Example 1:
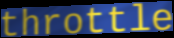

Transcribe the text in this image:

throttle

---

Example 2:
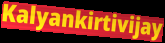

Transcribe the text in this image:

Kalyankirtivijay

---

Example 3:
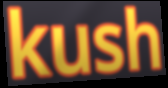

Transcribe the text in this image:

kush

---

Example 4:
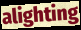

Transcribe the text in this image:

alighting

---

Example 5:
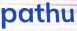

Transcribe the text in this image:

pathu